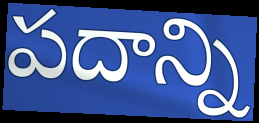
పదాన్ని